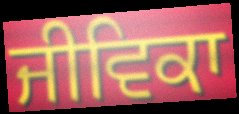
ਜੀਵਿਕਾ